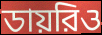
ডায়রিও